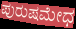
ಪುರುಷಮೇಧ